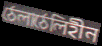
ঠেলাঠেলিহীন